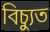
বিচ্যুত